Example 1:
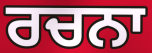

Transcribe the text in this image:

ਰਚਨਾ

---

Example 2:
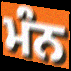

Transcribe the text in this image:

ਮੰਨ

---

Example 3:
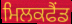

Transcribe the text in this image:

ਮਿਲਕਫੈਂਡ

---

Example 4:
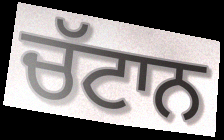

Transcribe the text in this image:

ਚੱਟਾਨ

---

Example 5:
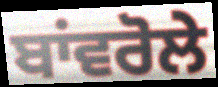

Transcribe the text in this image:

ਬਾਂਵਰੋਲੇ